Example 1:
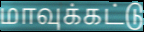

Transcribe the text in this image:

மாவுக்கட்டு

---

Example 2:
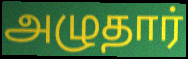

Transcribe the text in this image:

அழுதார்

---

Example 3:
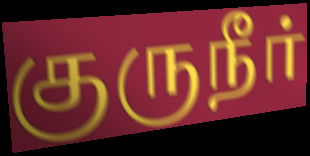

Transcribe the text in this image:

குருநீர்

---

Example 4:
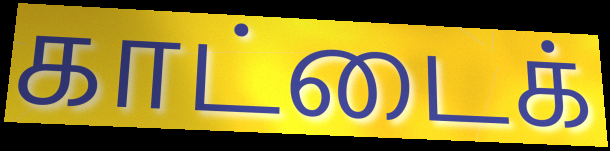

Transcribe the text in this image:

காட்டைக்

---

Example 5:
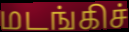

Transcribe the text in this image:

மடங்கிச்